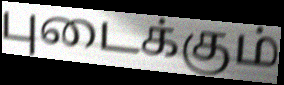
புடைக்கும்